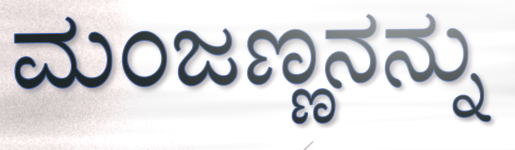
ಮಂಜಣ್ಣನನ್ನು